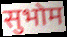
सुभोम